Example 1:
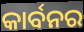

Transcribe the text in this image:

କାର୍ବନର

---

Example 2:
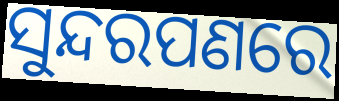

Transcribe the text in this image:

ସୁନ୍ଦରପଣରେ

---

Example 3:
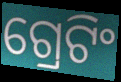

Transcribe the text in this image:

ଗ୍ରେଟିଂ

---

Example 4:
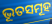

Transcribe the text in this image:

ଭୂତସମୂହ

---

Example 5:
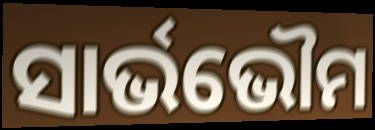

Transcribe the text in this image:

ସାର୍ଭଭୌମ